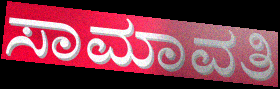
ಸಾಮಾವತಿ